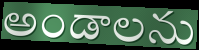
అండాలను